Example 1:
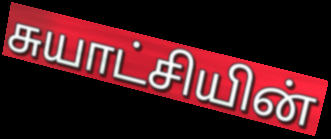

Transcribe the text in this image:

சுயாட்சியின்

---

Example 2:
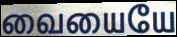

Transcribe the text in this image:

வையையே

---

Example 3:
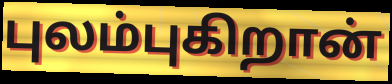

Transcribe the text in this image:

புலம்புகிறான்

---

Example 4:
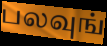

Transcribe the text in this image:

பலவுங்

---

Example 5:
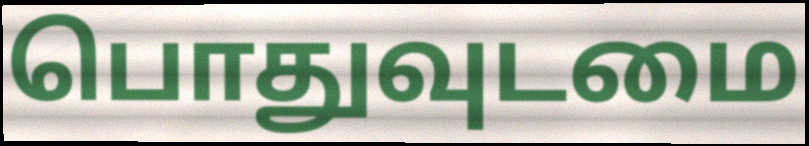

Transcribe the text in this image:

பொதுவுடமை